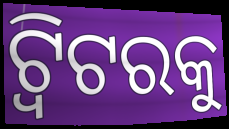
ଟ୍ୱିଟରକୁ